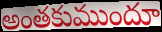
అంతకుముందూ